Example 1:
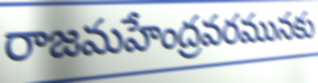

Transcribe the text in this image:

రాజమహేంద్రవరమునకు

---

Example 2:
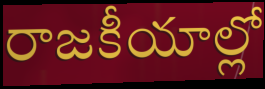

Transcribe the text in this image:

రాజకీయాల్లో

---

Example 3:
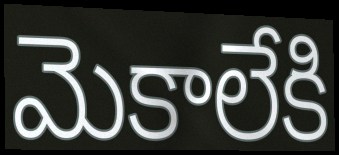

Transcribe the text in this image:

మెకాలేకి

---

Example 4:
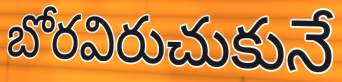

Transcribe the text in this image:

బోరవిరుచుకునే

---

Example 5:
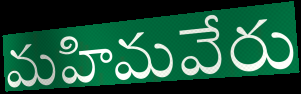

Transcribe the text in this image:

మహిమవేరు